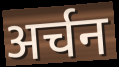
अर्चन